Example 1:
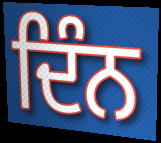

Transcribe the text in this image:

ਦਿੰਨ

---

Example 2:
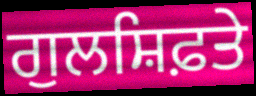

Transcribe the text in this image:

ਗੁਲਸ਼ਿਫ਼ਤੇ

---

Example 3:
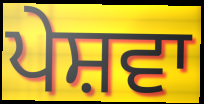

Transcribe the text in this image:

ਪੇਸ਼ਵਾ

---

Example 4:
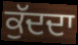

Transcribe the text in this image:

ਕੁੱਦਦਾ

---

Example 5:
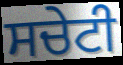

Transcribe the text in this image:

ਸਚੇਟੀ